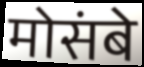
मोसंबे